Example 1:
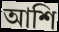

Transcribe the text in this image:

আশি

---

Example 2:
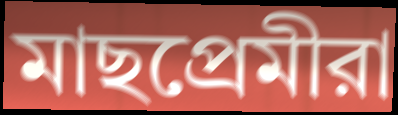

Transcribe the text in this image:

মাছপ্রেমীরা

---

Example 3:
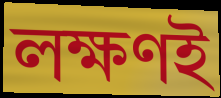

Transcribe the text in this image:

লক্ষণই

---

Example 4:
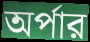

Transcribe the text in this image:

অর্পার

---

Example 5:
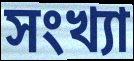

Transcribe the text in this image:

সংখ্যা